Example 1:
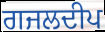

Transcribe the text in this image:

ਗਜਲਦੀਪ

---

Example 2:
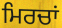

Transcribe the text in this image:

ਮਿਰਚਾਂ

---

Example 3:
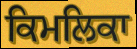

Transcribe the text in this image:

ਕਿਮਲਿਕਾ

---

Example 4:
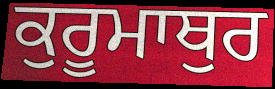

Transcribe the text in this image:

ਕੁਰੂਮਾਥੁਰ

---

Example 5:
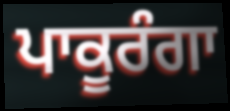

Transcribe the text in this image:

ਪਾਕੂਰੰਗਾ